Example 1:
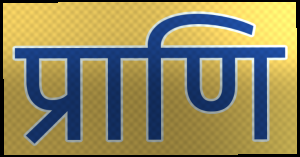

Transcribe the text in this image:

प्राणि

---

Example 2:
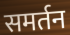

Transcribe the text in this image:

समर्तन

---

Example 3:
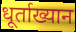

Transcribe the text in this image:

धूर्ताख्यान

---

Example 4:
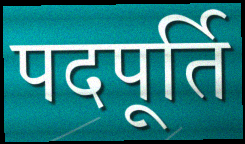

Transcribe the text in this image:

पदपूर्ति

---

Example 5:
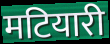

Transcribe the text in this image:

मटियारी